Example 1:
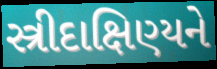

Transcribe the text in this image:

સ્ત્રીદાક્ષિણ્યને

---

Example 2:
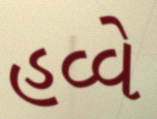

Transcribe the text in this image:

હવ્વે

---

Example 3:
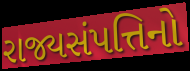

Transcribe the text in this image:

રાજ્યસંપત્તિનો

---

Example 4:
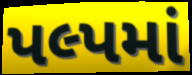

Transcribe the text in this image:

પલ્પમાં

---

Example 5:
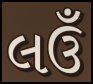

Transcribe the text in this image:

લઉઁ